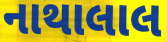
નાથાલાલ